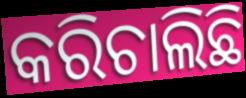
କରିଚାଲିଛି